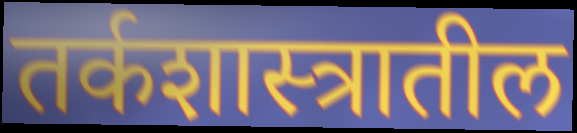
तर्कशास्त्रातील